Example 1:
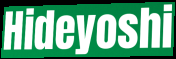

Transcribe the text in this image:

Hideyoshi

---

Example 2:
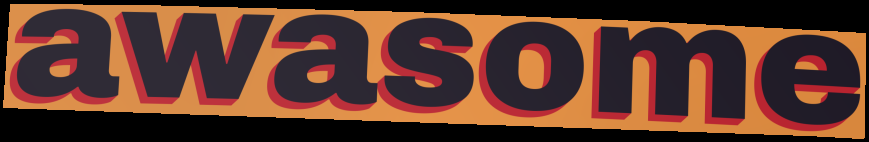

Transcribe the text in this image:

awasome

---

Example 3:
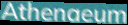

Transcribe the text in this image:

Athenaeum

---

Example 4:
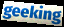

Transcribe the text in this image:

geeking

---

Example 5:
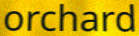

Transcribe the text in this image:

orchard